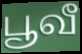
பூவீ